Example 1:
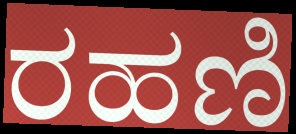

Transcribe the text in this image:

ರಹಣಿ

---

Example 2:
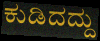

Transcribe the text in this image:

ಕುಡಿದದ್ದು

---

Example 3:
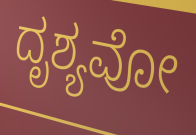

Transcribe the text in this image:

ದೃಶ್ಯವೋ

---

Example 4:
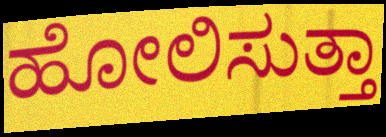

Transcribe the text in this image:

ಹೋಲಿಸುತ್ತಾ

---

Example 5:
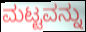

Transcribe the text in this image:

ಮಟ್ಟವನ್ನು